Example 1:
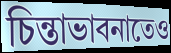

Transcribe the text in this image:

চিন্তাভাবনাতেও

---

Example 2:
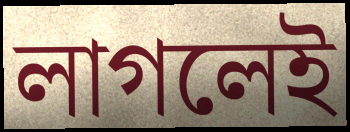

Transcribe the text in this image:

লাগলেই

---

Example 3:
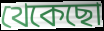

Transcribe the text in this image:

থেকেছো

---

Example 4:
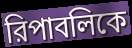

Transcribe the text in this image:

রিপাবলিকে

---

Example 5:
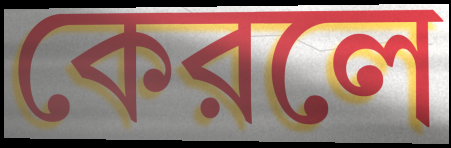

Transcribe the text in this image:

কেরলে